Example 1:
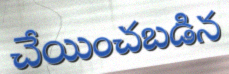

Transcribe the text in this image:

చేయించబడిన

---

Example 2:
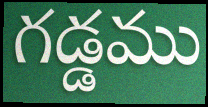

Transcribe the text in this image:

గడ్డము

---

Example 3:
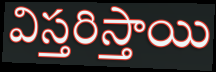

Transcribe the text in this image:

విస్తరిస్తాయి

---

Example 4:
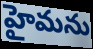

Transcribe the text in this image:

హైమను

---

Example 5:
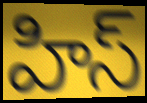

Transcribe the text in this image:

హిస్